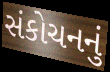
સંકોચનનું